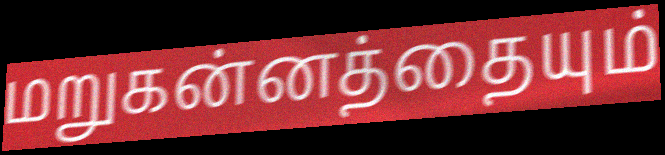
மறுகன்னத்தையும்